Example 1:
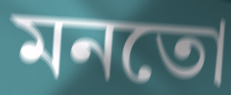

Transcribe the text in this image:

মনতো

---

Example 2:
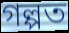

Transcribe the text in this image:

গল্পত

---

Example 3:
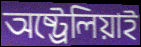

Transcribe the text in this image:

অষ্ট্ৰেলিয়াই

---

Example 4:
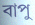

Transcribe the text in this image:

বাপু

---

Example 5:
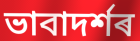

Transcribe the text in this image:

ভাবাদৰ্শৰ